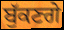
ਬੁੱਕਣਗੇ